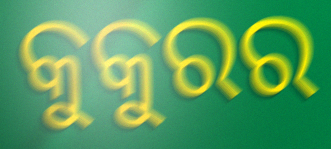
କୁକୁରର